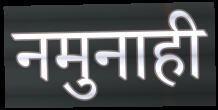
नमुनाही